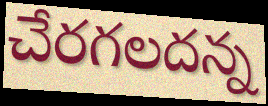
చేరగలదన్న